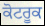
ਕੋਟਰੂਕ